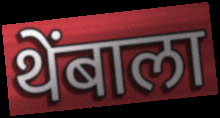
थेंबाला